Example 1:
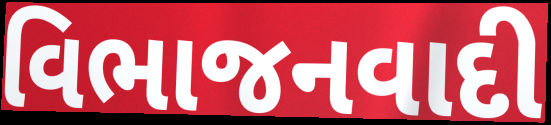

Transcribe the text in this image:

વિભાજનવાદી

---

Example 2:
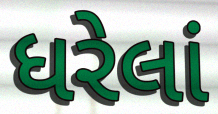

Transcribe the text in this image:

ધરેલાં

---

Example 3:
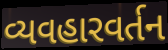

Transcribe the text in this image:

વ્યવહારવર્તન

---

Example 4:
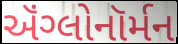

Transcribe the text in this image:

ઍંગ્લોનૉર્મન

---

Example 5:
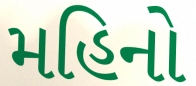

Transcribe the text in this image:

મહિનો